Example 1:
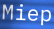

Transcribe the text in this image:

Miep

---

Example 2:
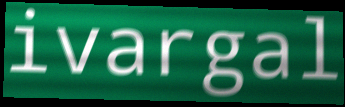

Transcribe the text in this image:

ivargal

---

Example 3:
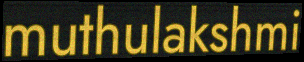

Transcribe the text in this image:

muthulakshmi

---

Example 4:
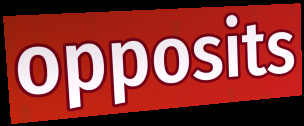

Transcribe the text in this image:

opposits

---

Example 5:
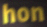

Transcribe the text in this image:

hon